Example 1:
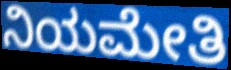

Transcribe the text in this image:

ನಿಯಮೇತಿ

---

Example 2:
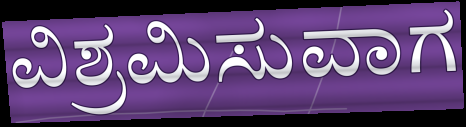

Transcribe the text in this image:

ವಿಶ್ರಮಿಸುವಾಗ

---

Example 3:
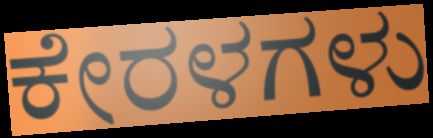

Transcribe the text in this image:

ಕೇರಳಗಳು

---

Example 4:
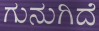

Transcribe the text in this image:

ಗುನುಗಿದೆ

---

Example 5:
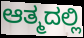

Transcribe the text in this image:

ಆತ್ಮದಲ್ಲಿ